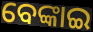
ବେଙ୍କାଇ